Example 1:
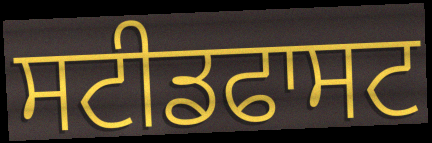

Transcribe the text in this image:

ਸਟੀਡਫਾਸਟ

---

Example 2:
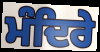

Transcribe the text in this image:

ਮੰਦਿਰੇ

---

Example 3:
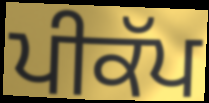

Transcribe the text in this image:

ਪੀਕੱਪ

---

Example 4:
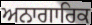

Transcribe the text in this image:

ਅਨਾਗਾਰਿਕ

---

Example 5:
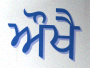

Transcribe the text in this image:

ਔਖੈ